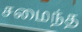
சமைந்த